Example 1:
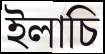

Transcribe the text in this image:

ইলাচি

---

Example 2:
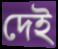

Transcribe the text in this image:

দেই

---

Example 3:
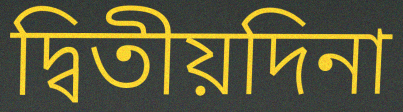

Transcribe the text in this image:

দ্বিতীয়দিনা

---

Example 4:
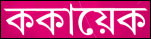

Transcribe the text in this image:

ককায়েক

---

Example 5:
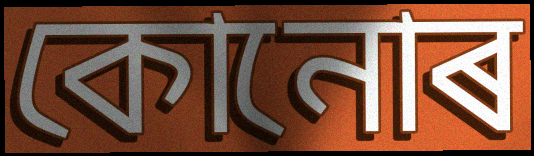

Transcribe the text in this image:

কোনোৰ